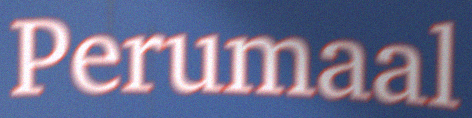
Perumaal